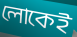
লোকেই